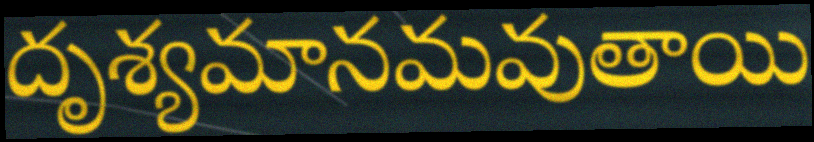
దృశ్యమానమవుతాయి